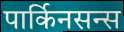
पार्किनसन्स